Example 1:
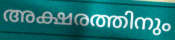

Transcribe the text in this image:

അക്ഷരത്തിനും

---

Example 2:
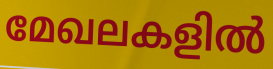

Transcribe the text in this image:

മേഖലകളിൽ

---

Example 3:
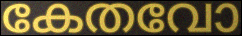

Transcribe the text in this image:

കേതവോ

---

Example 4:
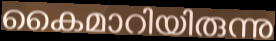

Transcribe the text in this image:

കൈമാറിയിരുന്നു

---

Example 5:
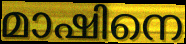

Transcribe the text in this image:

മാഷിനെ